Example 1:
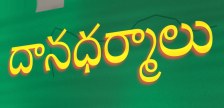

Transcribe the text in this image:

దానధర్మాలు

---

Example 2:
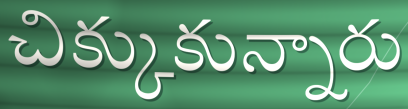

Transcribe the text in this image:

చిక్కుకున్నారు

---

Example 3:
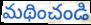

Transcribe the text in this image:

మథించండి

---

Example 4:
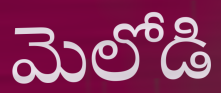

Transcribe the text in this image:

మెలోడి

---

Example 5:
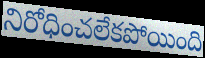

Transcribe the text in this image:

నిరోధించలేకపోయింది